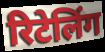
रिटेलिंग